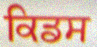
ਕਿਡਸ